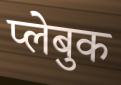
प्लेबुक